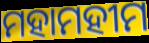
ମହାମହୀମ